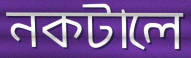
নকটালে